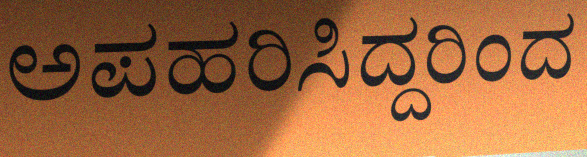
ಅಪಹರಿಸಿದ್ದರಿಂದ